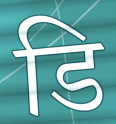
डि